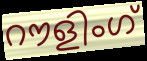
റൗളിംഗ്